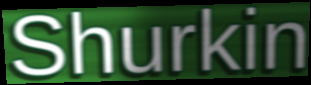
Shurkin